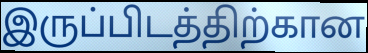
இருப்பிடத்திற்கான